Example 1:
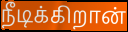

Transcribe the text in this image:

நீடிக்கிறான்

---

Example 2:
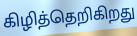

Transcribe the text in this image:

கிழித்தெறிகிறது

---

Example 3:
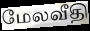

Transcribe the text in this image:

மேலவீதி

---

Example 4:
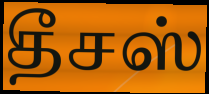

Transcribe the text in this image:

தீசஸ்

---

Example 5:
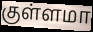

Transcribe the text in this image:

குள்ளமா